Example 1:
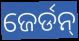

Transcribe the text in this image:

ଜେର୍ଡନ୍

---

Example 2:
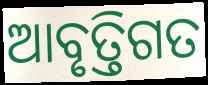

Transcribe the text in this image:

ଆବୃତ୍ତିଗତ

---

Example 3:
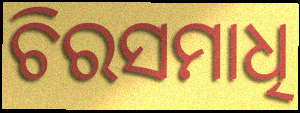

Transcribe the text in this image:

ଚିରସମାଧି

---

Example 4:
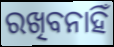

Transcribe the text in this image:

ରଖିବନାହିଁ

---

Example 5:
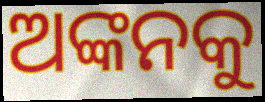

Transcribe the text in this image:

ଅଙ୍କନକୁ